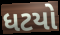
ધટયો